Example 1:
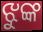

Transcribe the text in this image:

ଝୁଙ୍କ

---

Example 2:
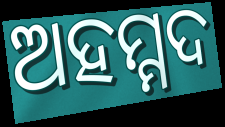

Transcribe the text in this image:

ଅହମ୍ମଦ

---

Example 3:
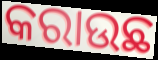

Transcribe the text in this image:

କରାଉଛ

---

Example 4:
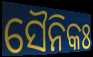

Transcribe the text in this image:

ସୈନିକଃ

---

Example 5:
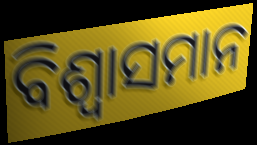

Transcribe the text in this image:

ବିଶ୍ଵାସମାନ